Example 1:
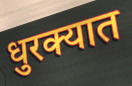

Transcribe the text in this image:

धुरक्यात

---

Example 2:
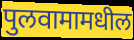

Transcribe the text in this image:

पुलवामामधील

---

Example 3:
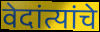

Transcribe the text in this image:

वेदांत्यांचे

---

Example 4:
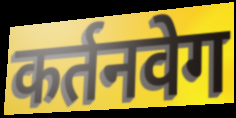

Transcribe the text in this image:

कर्तनवेग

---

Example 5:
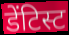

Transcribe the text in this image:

डेंटिस्ट